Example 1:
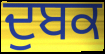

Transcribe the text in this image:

ਦੁਬਕ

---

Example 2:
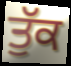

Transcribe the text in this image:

ਤੁੱਕ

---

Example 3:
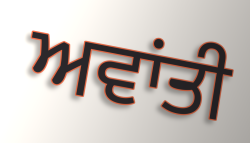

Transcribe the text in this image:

ਅਵਾਂਤੀ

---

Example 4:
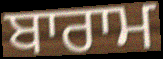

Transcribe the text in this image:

ਬਾਰਾਮ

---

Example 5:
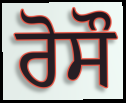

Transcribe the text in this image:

ਰੋਸੌ